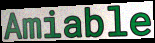
Amiable